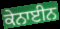
ਕੇਨਾਈਨ